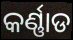
କର୍ଣ୍ଣାଡ